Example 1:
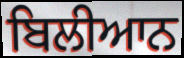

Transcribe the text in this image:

ਬਿਲੀਆਨ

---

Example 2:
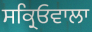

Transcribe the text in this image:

ਸਕ੍ਰਿਓਵਾਲਾ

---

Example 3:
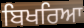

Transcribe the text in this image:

ਬਿਖਰਿਆ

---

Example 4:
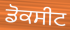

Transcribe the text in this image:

ਡੋਕਸੀਟ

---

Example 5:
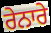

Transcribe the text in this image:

ਰੇਨਾਰੇ